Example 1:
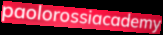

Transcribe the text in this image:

paolorossiacademy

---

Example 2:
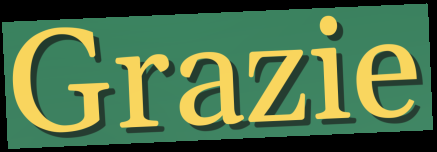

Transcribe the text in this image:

Grazie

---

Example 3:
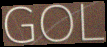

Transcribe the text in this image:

GOL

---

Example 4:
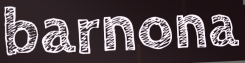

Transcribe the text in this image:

barnona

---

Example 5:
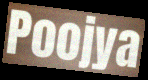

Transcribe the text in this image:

Poojya